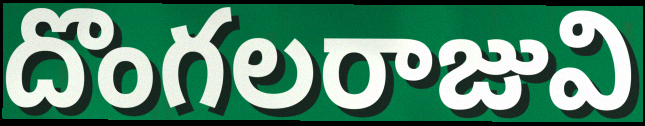
దొంగలరాజువి